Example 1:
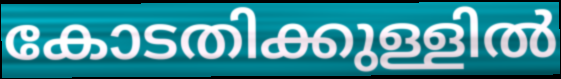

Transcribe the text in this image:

കോടതിക്കുള്ളിൽ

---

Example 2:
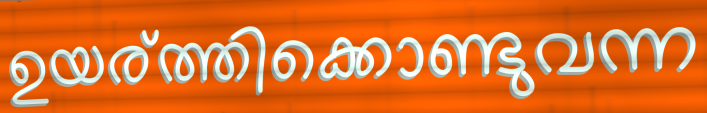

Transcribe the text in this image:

ഉയര്ത്തിക്കൊണ്ടുവന്ന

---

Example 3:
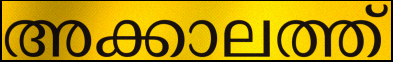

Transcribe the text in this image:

അക്കാലത്ത്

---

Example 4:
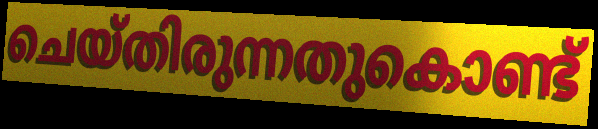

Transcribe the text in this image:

ചെയ്തിരുന്നതുകൊണ്ട്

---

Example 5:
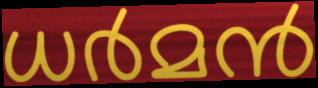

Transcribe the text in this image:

ധർമൻ